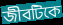
জীবটিকে